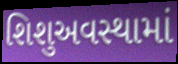
શિશુઅવસ્થામાં